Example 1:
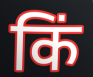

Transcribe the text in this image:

किं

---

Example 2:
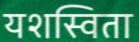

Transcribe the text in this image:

यशस्विता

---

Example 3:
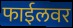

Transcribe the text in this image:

फाईलवर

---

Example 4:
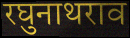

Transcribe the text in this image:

रघुनाथराव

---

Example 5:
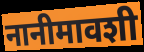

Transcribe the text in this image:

नानीमावशी